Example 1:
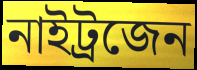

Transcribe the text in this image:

নাইট্ৰজেন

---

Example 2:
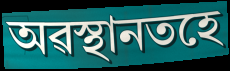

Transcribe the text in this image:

অৱস্থানতহে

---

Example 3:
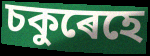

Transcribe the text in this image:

চকুৰেহে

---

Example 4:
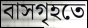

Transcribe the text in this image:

বাসগৃহতে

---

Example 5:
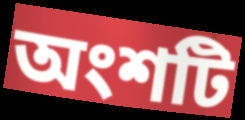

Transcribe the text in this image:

অংশটি